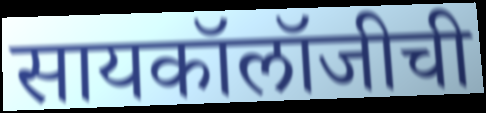
सायकॉलॉजीची